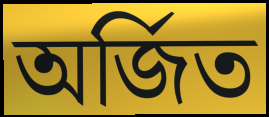
অর্জিত